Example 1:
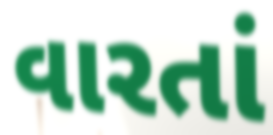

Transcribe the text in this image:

વારતાં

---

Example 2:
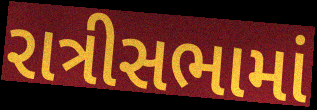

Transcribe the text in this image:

રાત્રીસભામાં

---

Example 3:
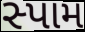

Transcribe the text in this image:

સ્પામ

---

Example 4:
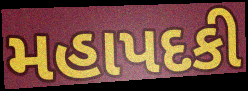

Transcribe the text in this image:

મહાપદકી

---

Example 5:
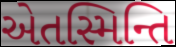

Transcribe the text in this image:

એતસ્મિન્તિ